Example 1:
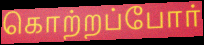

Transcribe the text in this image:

கொற்றப்போர்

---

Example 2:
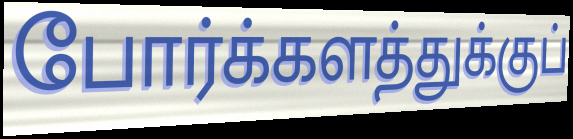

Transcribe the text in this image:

போர்க்களத்துக்குப்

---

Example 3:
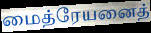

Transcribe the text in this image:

மைத்ரேயனைத்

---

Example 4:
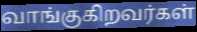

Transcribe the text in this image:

வாங்குகிறவர்கள்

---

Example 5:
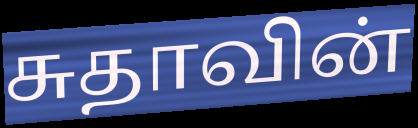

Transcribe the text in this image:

சுதாவின்